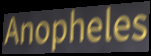
Anopheles